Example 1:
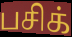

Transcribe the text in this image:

பசிக்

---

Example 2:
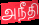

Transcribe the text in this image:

அநீதி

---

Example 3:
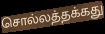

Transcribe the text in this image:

சொல்லத்தக்கது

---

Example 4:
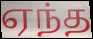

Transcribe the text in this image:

ஏந்த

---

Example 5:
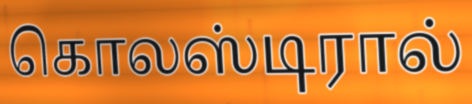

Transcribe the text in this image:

கொலஸ்டிரால்